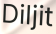
Diljit